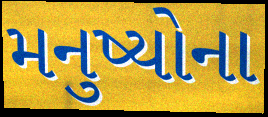
મનુષ્યોના